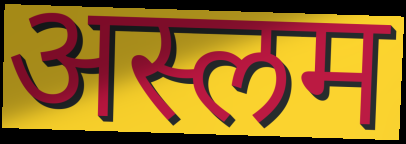
अस्लम